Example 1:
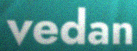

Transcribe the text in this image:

vedan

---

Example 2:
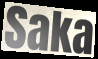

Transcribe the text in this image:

Saka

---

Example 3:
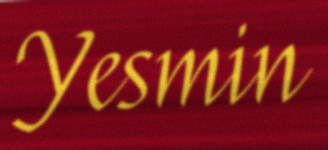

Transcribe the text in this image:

Yesmin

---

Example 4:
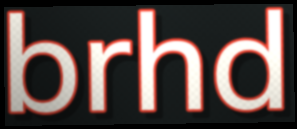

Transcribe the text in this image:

brhd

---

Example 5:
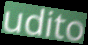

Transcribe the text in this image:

udito